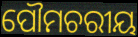
ପୌମଚରୀୟ